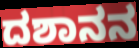
ದಶಾನನ